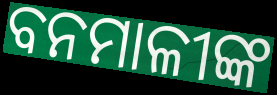
ବନମାଳୀଙ୍କ